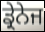
ਡ੍ਰੇਨੇਜ